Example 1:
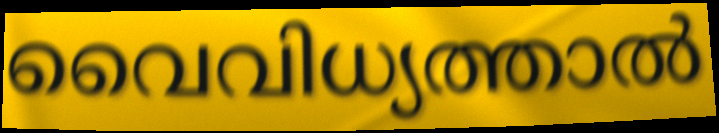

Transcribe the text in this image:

വൈവിധ്യത്താൽ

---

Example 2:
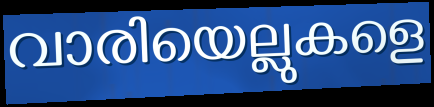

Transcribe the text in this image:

വാരിയെല്ലുകളെ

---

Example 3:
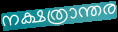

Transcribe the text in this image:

നക്ഷത്രാന്തര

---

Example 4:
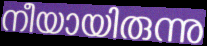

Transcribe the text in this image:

നീയായിരുന്നു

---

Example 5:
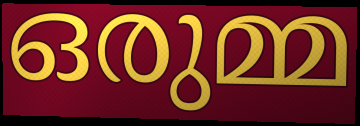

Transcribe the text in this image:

ഒരുമ്മ